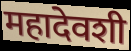
महादेवशी